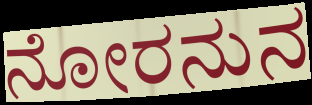
ನೋರನುನ